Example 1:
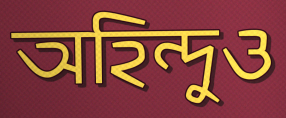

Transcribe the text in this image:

অহিন্দুও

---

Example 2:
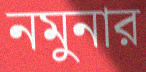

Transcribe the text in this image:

নমুনার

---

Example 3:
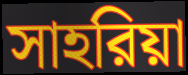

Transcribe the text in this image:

সাহরিয়া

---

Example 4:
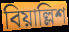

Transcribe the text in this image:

বিয়াল্লিশ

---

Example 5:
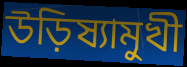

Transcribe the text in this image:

উড়িষ্যামুখী